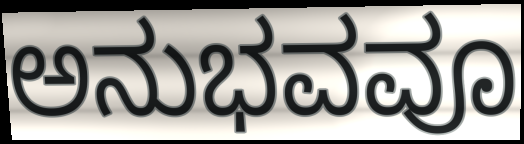
ಅನುಭವವೂ